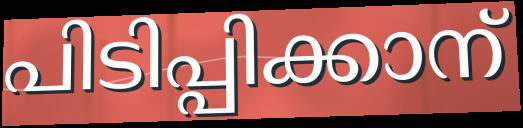
പിടിപ്പിക്കാന്